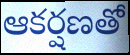
ఆకర్షణతో